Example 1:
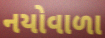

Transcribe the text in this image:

નયોવાળા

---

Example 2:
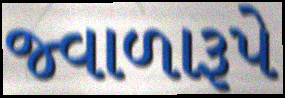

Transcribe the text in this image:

જ્વાળારૂપે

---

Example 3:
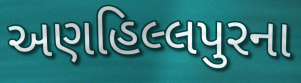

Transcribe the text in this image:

અણહિલ્લપુરના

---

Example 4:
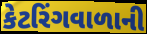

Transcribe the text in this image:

કેટરિંગવાળાની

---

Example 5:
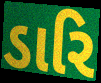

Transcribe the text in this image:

ડારિ